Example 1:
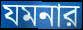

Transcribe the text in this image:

যমনার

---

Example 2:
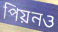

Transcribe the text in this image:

পিয়নও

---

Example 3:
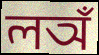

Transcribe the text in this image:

লঅঁ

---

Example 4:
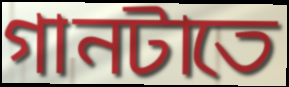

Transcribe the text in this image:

গানটাতে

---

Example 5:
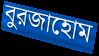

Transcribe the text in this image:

বুরজাহোম